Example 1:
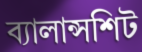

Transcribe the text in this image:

ব্যালান্সশিট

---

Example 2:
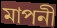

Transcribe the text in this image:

মাপনী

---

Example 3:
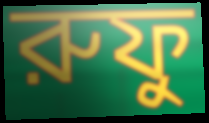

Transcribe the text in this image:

রুফু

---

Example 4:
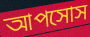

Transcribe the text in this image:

আপসোস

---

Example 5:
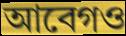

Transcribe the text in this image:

আবেগও